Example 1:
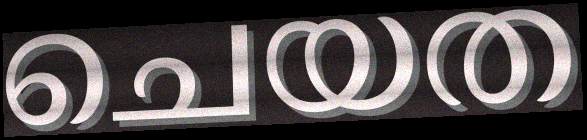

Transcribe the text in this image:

ചെയത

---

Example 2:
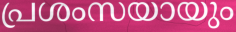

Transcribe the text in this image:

പ്രശംസയായും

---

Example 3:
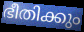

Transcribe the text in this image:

ഭീതിക്കും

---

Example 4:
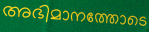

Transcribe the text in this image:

അഭിമാനത്തോടെ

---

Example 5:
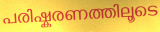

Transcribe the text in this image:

പരിഷ്കരണത്തിലൂടെ